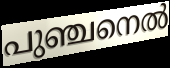
പുഞ്ചനെൽ